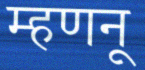
म्हणनू